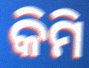
କିମି